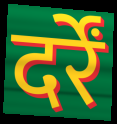
दर्रें